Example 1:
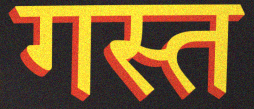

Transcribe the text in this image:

गस्त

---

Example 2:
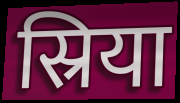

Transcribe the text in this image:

स्रिया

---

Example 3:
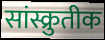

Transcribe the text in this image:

सांस्क्रुतीक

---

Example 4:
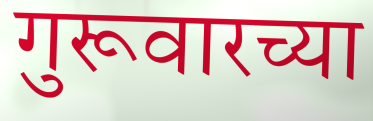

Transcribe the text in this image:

गुरूवारच्या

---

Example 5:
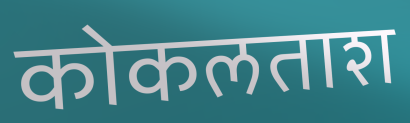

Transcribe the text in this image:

कोकलताश